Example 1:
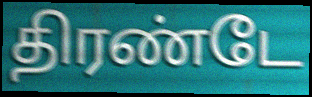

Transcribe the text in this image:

திரண்டே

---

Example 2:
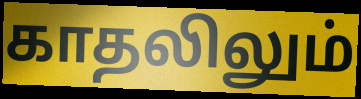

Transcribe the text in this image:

காதலிலும்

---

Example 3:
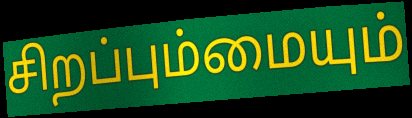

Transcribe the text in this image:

சிறப்பும்மையும்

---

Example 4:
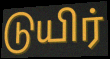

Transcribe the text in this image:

டுயிர்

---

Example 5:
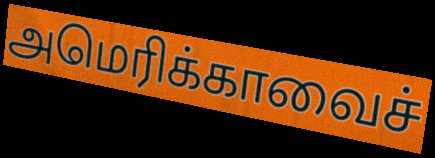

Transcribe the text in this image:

அமெரிக்காவைச்